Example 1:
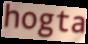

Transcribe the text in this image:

hogta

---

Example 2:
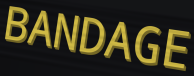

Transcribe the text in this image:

BANDAGE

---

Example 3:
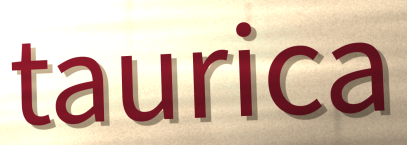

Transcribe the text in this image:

taurica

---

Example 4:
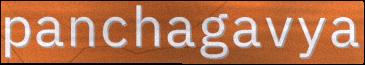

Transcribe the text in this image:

panchagavya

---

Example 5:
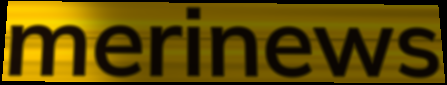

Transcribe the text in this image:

merinews